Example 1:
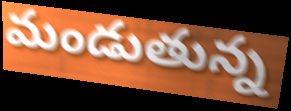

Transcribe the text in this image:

మండుతున్న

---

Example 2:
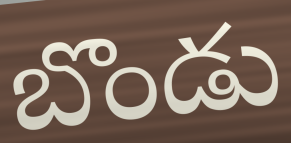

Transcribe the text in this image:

బొండు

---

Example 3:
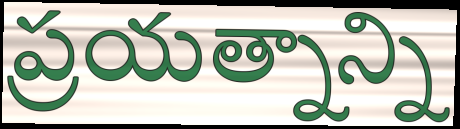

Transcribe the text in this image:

ప్రయత్నాన్ని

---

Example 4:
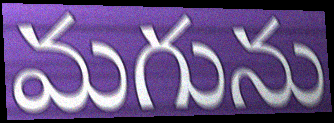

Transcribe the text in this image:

మగును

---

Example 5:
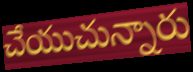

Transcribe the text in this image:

చేయుచున్నారు